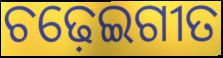
ଚଢ଼େଇଗୀତ